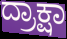
ದ್ರಾಕ್ಷಾ